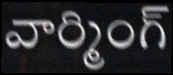
వార్మింగ్